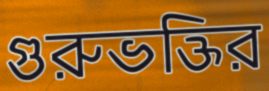
গুরুভক্তির